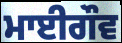
ਮਾਈਗੌਵ